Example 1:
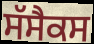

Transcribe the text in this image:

ਸੱਸੈਕਸ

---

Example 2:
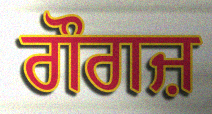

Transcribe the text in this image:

ਗੌਗਜ਼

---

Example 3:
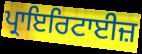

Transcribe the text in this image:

ਪ੍ਰਾਇਰਿਟਾਈਜ਼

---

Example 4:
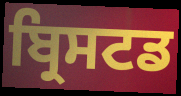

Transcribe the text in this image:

ਬ੍ਰਿਸਟਡ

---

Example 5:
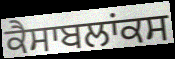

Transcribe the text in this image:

ਕੈਸਾਬਲਾਂਕਸ